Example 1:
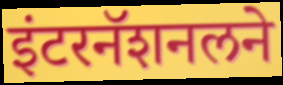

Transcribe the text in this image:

इंटरनॅशनलने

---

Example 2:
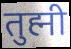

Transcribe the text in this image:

तुह्मी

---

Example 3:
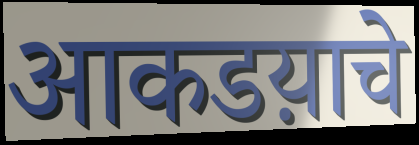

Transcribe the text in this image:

आकडय़ाचे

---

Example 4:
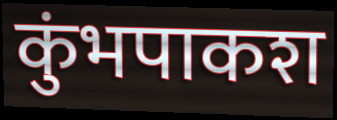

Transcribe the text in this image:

कुंभपाकश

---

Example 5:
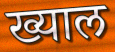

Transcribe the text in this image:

ख्याल